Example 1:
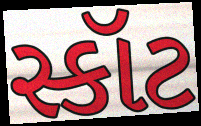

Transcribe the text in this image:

સ્કૉટ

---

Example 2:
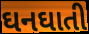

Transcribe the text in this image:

ઘનઘાતી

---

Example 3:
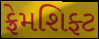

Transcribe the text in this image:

ફ્રેમશિફ્ટ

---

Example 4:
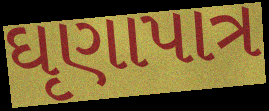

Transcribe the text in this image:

ઘૃણાપાત્ર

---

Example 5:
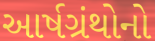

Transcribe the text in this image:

આર્ષગ્રંથોનો